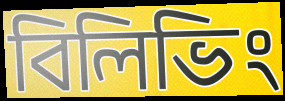
বিলিভিং